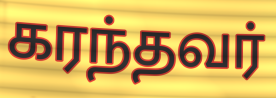
கரந்தவர்